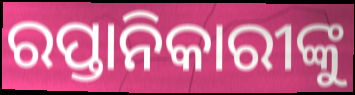
ରପ୍ତାନିକାରୀଙ୍କୁ